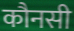
कौनसी